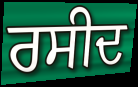
ਰਸੀਦ